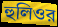
হুলিওর